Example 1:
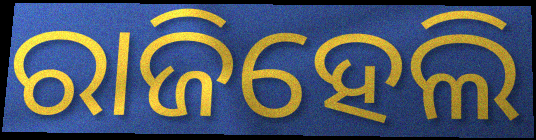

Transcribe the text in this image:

ରାଜିହେଲି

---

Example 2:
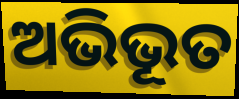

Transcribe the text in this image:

ଅଭିଭୂତ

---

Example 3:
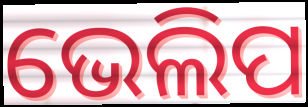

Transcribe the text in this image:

ଭେଲିପ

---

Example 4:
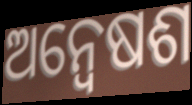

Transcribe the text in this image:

ଅନ୍ୱେଷଶ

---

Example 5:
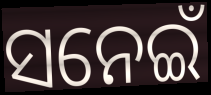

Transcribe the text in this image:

ସନେଇଁ